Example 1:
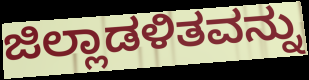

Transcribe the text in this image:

ಜಿಲ್ಲಾಡಳಿತವನ್ನು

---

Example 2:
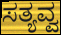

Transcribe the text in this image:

ಸತ್ಯವ್ವ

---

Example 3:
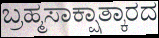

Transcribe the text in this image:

ಬ್ರಹ್ಮಸಾಕ್ಷಾತ್ಕಾರದ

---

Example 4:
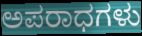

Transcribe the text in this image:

ಅಪರಾಧಗಳು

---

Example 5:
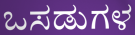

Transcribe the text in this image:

ಒಸಡುಗಳ